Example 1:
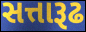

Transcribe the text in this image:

સત્તારૂઢ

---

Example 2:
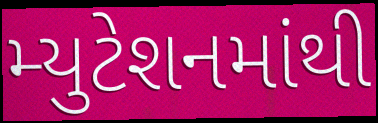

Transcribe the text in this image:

મ્યુટેશનમાંથી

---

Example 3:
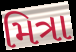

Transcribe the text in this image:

મિત્રા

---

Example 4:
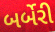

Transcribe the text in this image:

બર્બેરી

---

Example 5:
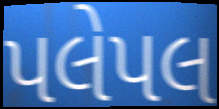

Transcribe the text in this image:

પલેપલ